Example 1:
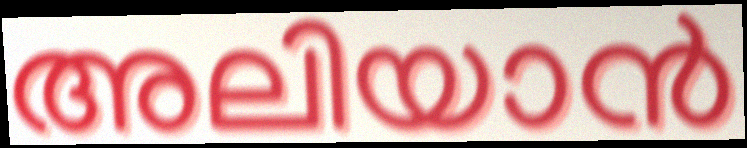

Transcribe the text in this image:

അലിയാൻ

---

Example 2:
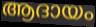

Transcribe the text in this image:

ആദായം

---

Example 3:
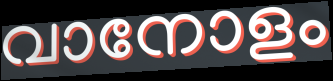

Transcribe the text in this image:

വാനോളം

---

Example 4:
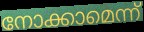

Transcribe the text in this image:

നോക്കാമെന്ന്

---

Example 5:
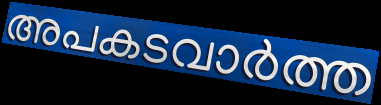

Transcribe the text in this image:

അപകടവാർത്ത